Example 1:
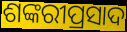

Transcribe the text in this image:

ଶଙ୍କରୀପ୍ରସାଦ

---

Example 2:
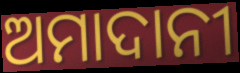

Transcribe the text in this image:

ଅମାଦାନୀ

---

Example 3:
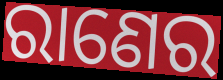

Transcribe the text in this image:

ରାଣେର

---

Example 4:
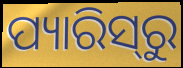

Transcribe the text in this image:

ପ୍ୟାରିସ୍‌ରୁ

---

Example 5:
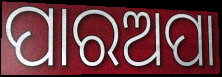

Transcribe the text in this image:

ପାରଅପା